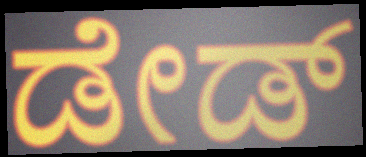
ಡೇಡ್